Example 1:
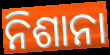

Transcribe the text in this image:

ନିଶାନା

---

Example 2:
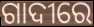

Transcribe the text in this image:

ଗାଦୀରେ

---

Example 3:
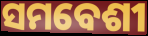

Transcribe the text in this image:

ସମବେଶୀ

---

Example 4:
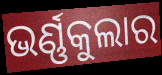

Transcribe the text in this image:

ଭର୍ଣ୍ଣକୁଲାର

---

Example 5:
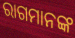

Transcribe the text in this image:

ରାଗମାନଙ୍କ